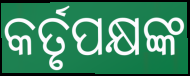
କର୍ତୃପକ୍ଷଙ୍କ